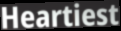
Heartiest